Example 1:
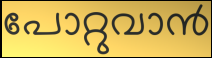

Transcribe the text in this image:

പോറ്റുവാൻ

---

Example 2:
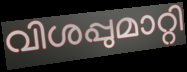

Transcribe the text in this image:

വിശപ്പുമാറ്റി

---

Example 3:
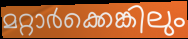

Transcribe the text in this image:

മറ്റാർക്കെങ്കിലും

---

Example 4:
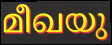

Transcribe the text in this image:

മീഖയു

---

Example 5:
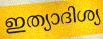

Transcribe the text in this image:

ഇത്യാദിശ്യ